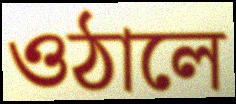
ওঠালে